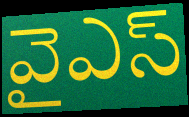
వైఎస్